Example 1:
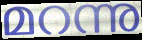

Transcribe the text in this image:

മറന്നു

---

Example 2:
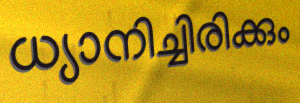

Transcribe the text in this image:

ധ്യാനിച്ചിരിക്കും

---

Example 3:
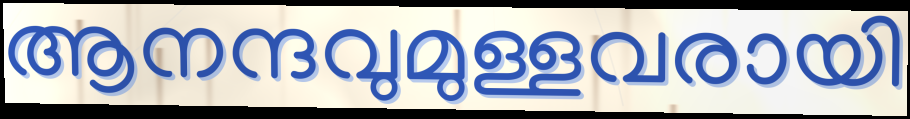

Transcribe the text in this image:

ആനന്ദവുമുള്ളവരായി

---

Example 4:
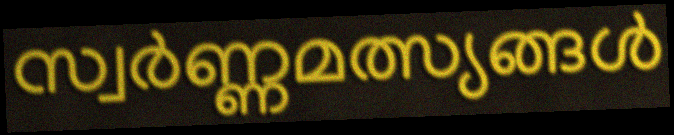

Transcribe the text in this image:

സ്വർണ്ണമത്സ്യങ്ങൾ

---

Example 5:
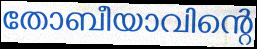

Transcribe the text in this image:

തോബീയാവിന്റെ